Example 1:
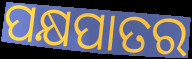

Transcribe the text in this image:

ପକ୍ଷପାତର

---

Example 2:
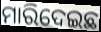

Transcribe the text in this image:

ମାରିଦେଇଛ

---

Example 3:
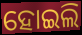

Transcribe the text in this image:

ହୋଇଲି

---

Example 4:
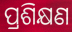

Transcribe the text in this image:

ପ୍ରଶିକ୍ଷଣ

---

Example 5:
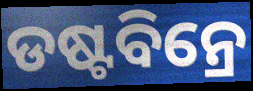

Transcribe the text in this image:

ଡଷ୍ଟବିନ୍ରେ